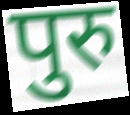
पुरु